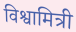
विश्वामित्री